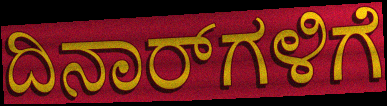
ದಿನಾರ್‌ಗಳಿಗೆ